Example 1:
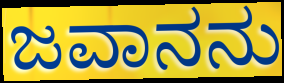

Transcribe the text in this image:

ಜವಾನನು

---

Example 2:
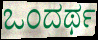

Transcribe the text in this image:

ಒಂದರ್ಥ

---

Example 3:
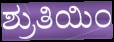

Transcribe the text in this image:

ಶ್ರುತಿಯಿಂ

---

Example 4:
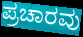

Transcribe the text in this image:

ಪ್ರಚಾರವು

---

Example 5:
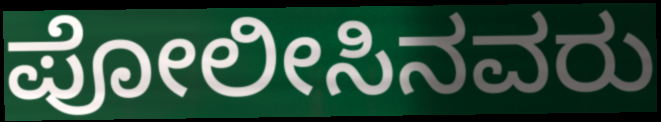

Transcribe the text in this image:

ಪೋಲೀಸಿನವರು